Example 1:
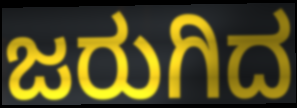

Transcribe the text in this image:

ಜರುಗಿದ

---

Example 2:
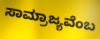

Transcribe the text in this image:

ಸಾಮ್ರಾಜ್ಯವೆಂಬ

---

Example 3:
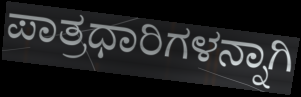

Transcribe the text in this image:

ಪಾತ್ರಧಾರಿಗಳನ್ನಾಗಿ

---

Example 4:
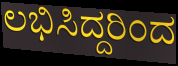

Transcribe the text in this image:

ಲಭಿಸಿದ್ದರಿಂದ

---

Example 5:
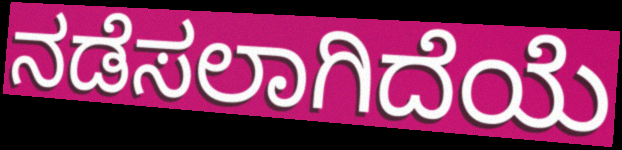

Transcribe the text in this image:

ನಡೆಸಲಾಗಿದೆಯೆ